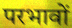
परभावों